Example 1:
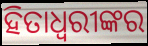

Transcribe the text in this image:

ହିତାଧ୍ଵରୀଙ୍କର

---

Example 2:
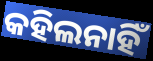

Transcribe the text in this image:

କହିଲନାହିଁ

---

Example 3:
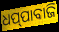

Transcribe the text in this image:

ଧପ୍‌ପାବାଜି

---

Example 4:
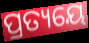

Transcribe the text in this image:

ପ୍ରତ୍ୟୟେ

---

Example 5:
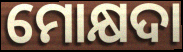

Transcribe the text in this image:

ମୋକ୍ଷଦା